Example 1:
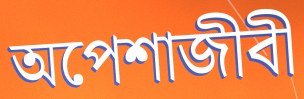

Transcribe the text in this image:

অপেশাজীবী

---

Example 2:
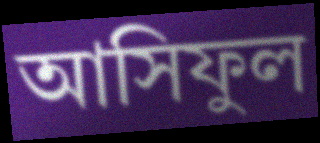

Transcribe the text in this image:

আসিফুল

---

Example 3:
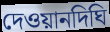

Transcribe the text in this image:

দেওয়ানদিঘি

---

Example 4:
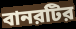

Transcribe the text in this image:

বানরটির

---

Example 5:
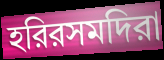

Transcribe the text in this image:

হরিরসমদিরা